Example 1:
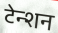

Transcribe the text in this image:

टेन्शन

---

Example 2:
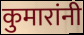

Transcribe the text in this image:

कुमारांनी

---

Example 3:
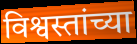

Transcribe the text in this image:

विश्वस्तांच्या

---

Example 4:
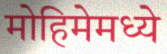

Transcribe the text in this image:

मोहिमेमध्ये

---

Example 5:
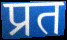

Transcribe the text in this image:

प्रत